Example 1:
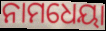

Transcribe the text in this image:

ନାମଧେୟା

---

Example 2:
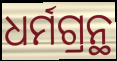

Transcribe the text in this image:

ଧର୍ମଗ୍ରନ୍ଥ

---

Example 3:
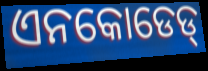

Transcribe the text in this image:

ଏନକୋଡେଡ୍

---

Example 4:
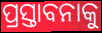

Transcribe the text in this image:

ପ୍ରସ୍ତାବନାକୁ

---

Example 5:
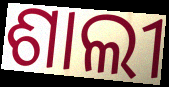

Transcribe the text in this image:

ଶାଲୀ